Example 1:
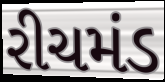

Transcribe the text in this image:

રીચમંડ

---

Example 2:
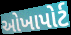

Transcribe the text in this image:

ઓખાપોર્ટ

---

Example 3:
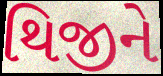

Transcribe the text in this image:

થિજીને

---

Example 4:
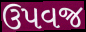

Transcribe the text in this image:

ઉપવજ્ર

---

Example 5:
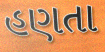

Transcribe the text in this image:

હણતા